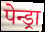
पेन्ड्रा